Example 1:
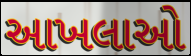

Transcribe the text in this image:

આખલાઓ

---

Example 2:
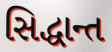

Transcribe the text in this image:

સિદ્ધાન્ત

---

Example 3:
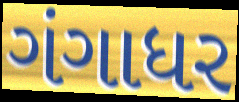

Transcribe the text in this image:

ગંગાધર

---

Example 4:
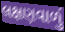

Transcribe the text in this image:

લક્ષણવાળું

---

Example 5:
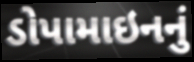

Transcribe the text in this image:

ડોપામાઇનનું